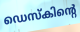
ഡെസ്കിന്റെ